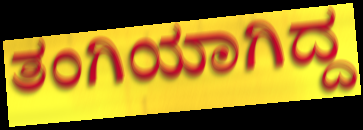
ತಂಗಿಯಾಗಿದ್ದ